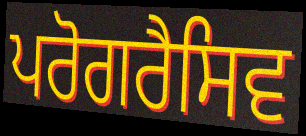
ਪਰੋਗਰੈਸਿਵ